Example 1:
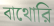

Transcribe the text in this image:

বাথোরি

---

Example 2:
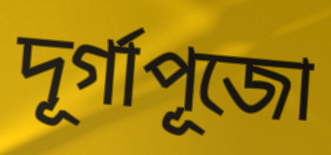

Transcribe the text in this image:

দূর্গাপূজো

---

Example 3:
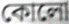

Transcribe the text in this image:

কোলো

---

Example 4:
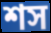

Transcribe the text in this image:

শস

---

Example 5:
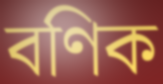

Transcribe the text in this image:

বণিক